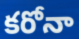
కరోనా